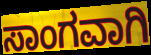
ಸಾಂಗವಾಗಿ